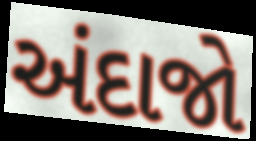
અંદાજો